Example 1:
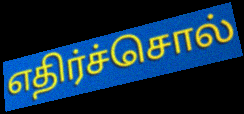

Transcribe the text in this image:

எதிர்ச்சொல்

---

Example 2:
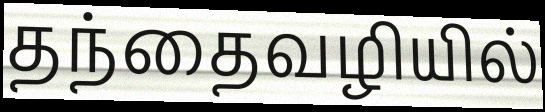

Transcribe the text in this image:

தந்தைவழியில்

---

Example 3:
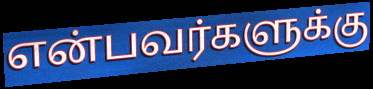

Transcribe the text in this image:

என்பவர்களுக்கு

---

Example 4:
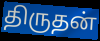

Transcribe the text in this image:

திருதன்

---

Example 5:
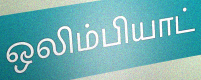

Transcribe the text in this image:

ஒலிம்பியாட்